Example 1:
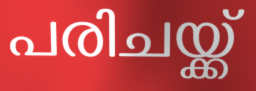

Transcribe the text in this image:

പരിചയ്ക്ക്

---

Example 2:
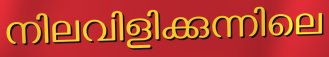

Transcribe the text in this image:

നിലവിളിക്കുന്നിലെ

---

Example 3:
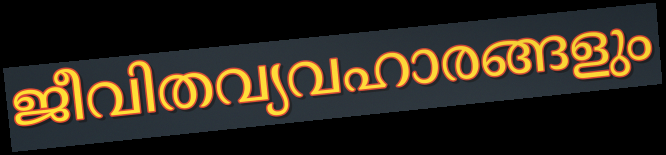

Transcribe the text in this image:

ജീവിതവ്യവഹാരങ്ങളും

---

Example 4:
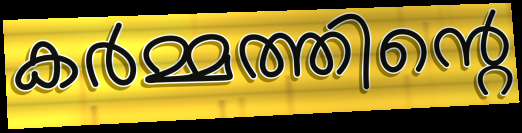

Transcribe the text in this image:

കർമ്മത്തിന്റെ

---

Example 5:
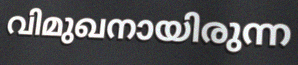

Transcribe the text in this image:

വിമുഖനായിരുന്ന